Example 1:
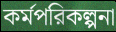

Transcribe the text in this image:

কর্মপরিকল্পনা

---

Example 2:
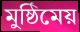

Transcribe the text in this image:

মুষ্ঠিমেয়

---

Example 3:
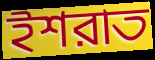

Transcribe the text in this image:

ইশরাত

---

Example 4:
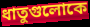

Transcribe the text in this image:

ধাতুগুলোকে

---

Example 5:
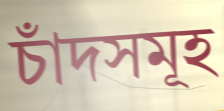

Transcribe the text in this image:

চাঁদসমূহ